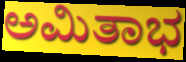
ಅಮಿತಾಭ